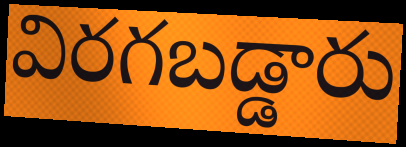
విరగబడ్డారు